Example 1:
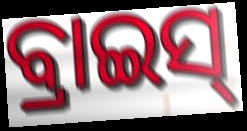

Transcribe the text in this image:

ବ୍ରାଇସ୍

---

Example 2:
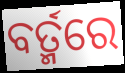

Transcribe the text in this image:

ବର୍ତ୍ମରେ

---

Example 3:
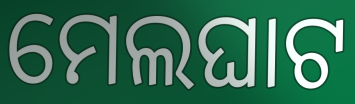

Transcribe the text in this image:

ମେଲଘାଟ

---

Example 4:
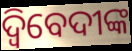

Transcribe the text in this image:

ଦ୍ବିବେଦୀଙ୍କ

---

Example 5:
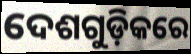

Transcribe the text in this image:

ଦେଶଗୁଡ଼ିକରେ